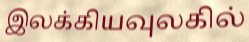
இலக்கியவுலகில்